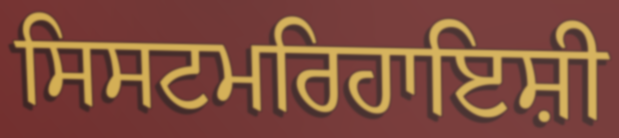
ਸਿਸਟਮਰਿਹਾਇਸ਼ੀ